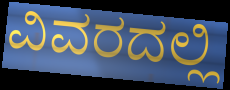
ವಿವರದಲ್ಲಿ